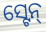
ସ୍ଟେନ୍